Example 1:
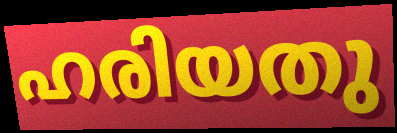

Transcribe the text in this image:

ഹരിയതു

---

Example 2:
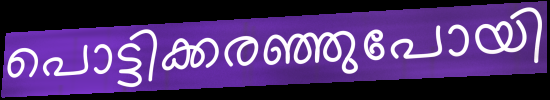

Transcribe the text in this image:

പൊട്ടിക്കരഞ്ഞുപോയി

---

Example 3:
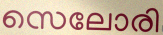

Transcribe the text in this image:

സെലോരി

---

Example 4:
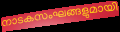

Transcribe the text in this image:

നാടകസംഘങ്ങളുമായി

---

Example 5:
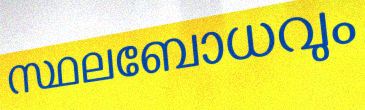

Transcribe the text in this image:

സ്ഥലബോധവും